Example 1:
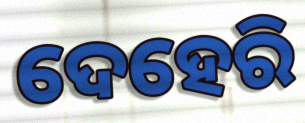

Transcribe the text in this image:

ଦେହେରି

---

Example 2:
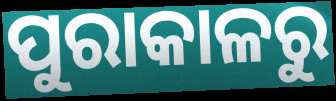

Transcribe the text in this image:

ପୁରାକାଳରୁ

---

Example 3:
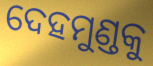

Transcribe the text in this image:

ଦେହମୁଣ୍ଡକୁ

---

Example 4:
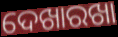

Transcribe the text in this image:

ଦେଖାରଖା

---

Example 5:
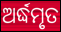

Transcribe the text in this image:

ଅର୍ଦ୍ଧମୃତ